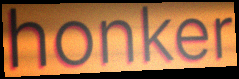
honker